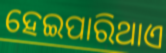
ହେଇପାରିଥାଏ